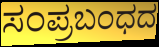
ಸಂಪ್ರಬಂಧದ